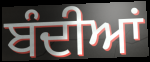
ਬੰਦੀਆਂ